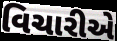
વિચારીએ